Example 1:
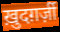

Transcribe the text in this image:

ख़ुदग़र्ज़ी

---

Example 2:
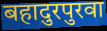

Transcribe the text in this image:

बहादुरपुरवा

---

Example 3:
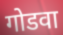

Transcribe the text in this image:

गोडवा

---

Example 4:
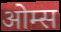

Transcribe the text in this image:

ओम्स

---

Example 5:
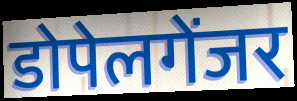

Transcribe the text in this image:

डोपेलगेंजर